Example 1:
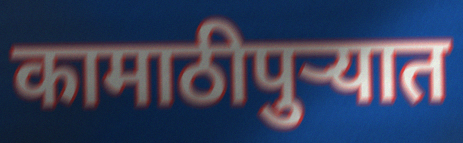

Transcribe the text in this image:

कामाठीपुर्‍यात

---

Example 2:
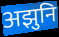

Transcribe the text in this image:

अझुनि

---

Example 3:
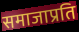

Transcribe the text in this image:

समाजाप्रति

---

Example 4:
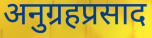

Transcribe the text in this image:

अनुग्रहप्रसाद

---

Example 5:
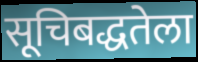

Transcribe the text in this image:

सूचिबद्धतेला